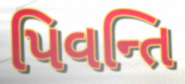
પિવન્તિ